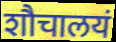
शौचालयं